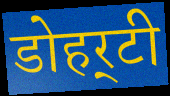
डोहर्टी